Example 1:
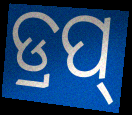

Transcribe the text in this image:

ଡ୍ରପ୍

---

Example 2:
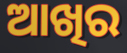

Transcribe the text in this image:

ଆଖିର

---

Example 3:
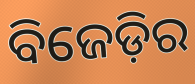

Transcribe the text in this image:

ବିଜେଡ଼ିର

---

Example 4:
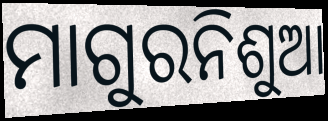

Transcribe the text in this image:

ମାଗୁରନିଶୁଆ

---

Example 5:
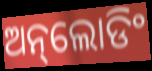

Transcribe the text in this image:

ଅନ୍‌ଲୋଡିଂ